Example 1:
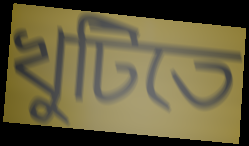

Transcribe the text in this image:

খুটিতে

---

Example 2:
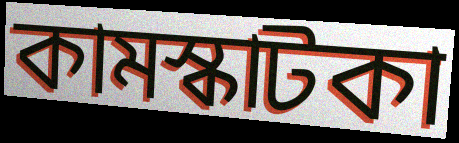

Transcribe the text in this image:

কামস্কাটকা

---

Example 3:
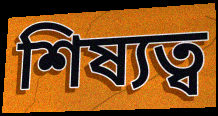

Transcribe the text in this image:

শিষ্যত্ব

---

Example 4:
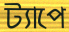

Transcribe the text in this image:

ট্যাপে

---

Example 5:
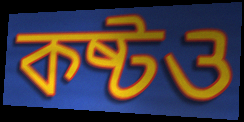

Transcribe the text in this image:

কষ্টও